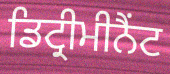
ਡਿਟ੍ਰੀਮੀਨੈਂਟ